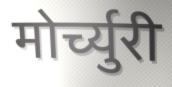
मोर्च्युरी